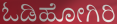
ಓಡಿಹೋಗಿರಿ